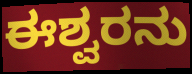
ಈಶ್ವರನು